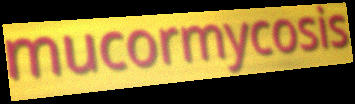
mucormycosis